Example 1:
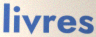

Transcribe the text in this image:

livres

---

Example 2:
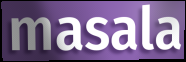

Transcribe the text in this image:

masala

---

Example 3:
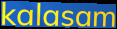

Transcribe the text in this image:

kalasam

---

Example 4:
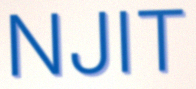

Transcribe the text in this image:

NJIT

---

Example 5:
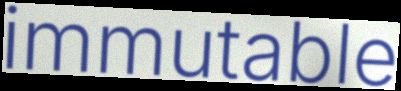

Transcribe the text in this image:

immutable